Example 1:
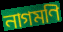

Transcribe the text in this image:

নাগমণি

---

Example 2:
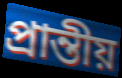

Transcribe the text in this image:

প্রান্তীয়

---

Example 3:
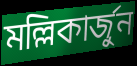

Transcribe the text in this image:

মল্লিকার্জুন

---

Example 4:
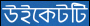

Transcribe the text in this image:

উইকেটটি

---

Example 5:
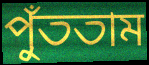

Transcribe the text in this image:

পুঁততাম